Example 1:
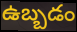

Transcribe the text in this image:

ఉబ్బడం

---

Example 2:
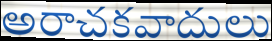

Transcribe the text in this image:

అరాచకవాదులు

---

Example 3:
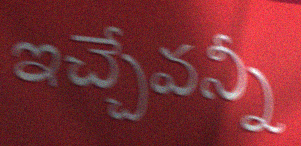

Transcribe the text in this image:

ఇచ్చేవన్నీ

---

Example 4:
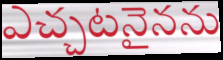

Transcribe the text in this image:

ఎచ్చటనైనను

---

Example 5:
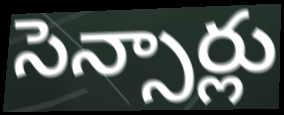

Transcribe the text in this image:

సెన్సార్లు